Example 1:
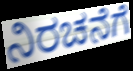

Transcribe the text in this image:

ನಿರಚನೆಗೆ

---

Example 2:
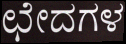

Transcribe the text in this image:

ಛೇದಗಳ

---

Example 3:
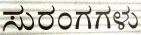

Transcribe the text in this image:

ಸುರಂಗಗಳು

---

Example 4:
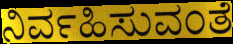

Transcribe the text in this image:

ನಿರ್ವಹಿಸುವಂತೆ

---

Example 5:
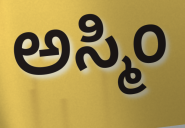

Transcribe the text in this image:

ಅಸ್ಮಿಂ